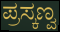
ಪ್ರಸ್ಕಣ್ವ